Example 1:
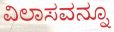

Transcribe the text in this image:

ವಿಲಾಸವನ್ನೂ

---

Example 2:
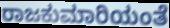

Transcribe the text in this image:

ರಾಜಕುಮಾರಿಯಂತೆ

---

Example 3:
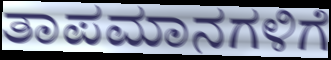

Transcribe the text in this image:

ತಾಪಮಾನಗಳಿಗೆ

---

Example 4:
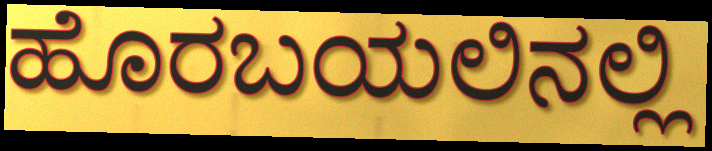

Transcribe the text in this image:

ಹೊರಬಯಲಿನಲ್ಲಿ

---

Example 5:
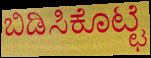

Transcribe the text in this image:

ಬಿಡಿಸಿಕೊಟ್ಟೆ